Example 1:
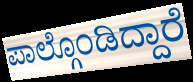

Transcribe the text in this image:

ಪಾಲ್ಗೊಂಡಿದ್ದಾರೆ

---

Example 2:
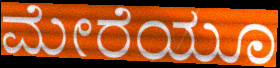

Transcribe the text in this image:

ಮೇರೆಯೂ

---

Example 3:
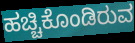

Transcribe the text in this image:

ಹಚ್ಚಿಕೊಂಡಿರುವ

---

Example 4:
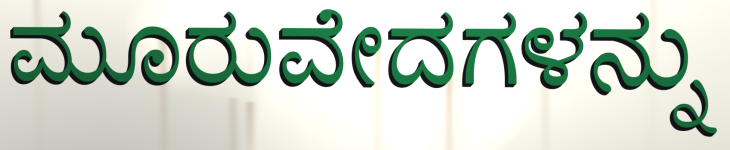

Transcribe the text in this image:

ಮೂರುವೇದಗಳನ್ನು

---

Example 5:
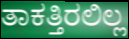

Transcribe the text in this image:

ತಾಕತ್ತಿರಲಿಲ್ಲ